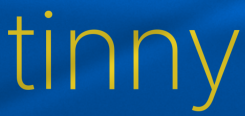
tinny